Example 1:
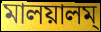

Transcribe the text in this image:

মালয়ালম্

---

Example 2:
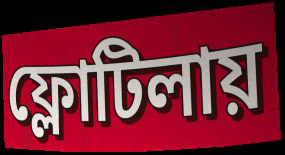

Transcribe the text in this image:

ফ্লোটিলায়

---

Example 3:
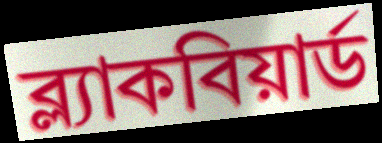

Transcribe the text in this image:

ব্ল্যাকবিয়ার্ড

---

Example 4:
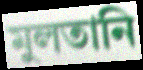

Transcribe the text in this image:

মুলতানি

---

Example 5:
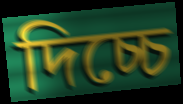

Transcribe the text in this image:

দিচ্চে